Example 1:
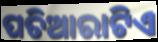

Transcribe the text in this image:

ପତିଆରାଟିଏ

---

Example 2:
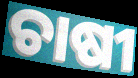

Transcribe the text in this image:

ଚାଷୀ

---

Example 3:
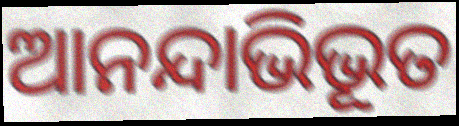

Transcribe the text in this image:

ଆନନ୍ଦାଭିଭୂତ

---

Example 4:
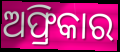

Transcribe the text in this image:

ଅଫ୍ରିକାର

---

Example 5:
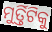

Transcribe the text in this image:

ମୁର୍ତ୍ତିଟିକୁ